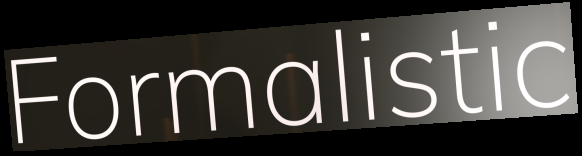
Formalistic